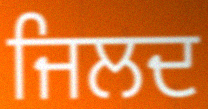
ਜਿਲਦ